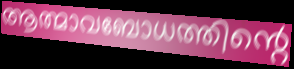
ആത്മാവബോധത്തിന്റെ